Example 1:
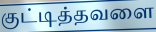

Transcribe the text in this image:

குட்டித்தவளை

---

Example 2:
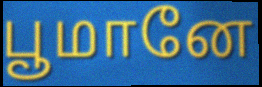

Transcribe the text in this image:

பூமானே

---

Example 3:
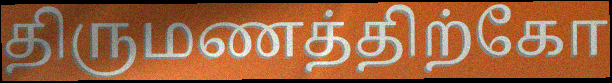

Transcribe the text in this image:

திருமணத்திற்கோ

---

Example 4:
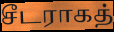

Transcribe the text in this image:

சீடராகத்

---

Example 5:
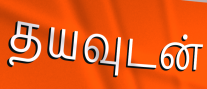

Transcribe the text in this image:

தயவுடன்